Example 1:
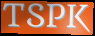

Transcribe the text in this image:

TSPK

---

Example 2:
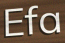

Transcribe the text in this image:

Efa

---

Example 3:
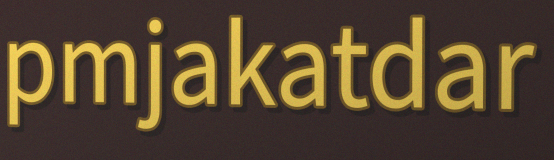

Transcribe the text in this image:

pmjakatdar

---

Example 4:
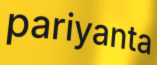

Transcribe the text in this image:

pariyanta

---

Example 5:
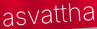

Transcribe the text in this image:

asvattha